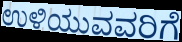
ಉಳಿಯುವವರಿಗೆ